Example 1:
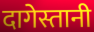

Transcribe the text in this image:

दागेस्तानी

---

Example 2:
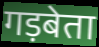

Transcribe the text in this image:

गड़बेता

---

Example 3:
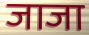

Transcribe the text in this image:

जाजा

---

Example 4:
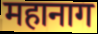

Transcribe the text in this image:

महानाग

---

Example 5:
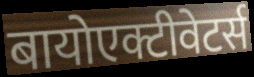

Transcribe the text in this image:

बायोएक्टीवेटर्स